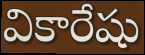
వికారేషు